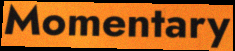
Momentary